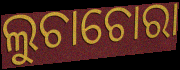
ଲୁଚାଚୋରା